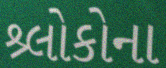
શ્ર્લોકોના